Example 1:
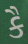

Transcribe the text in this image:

કૈ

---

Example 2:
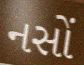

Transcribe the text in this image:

નસોં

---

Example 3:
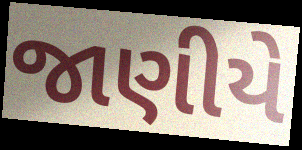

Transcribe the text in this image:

જાણીયે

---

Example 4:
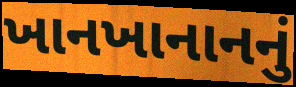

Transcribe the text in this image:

ખાનખાનાનનું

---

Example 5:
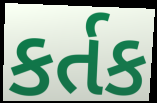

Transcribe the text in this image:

કર્તક